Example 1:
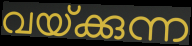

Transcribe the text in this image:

വയ്‌ക്കുന്ന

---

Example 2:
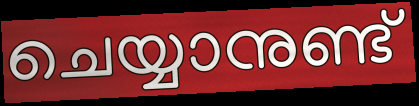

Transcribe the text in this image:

ചെയ്യാനുണ്ട്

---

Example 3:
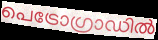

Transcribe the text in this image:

പെട്രോഗ്രാഡിൽ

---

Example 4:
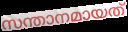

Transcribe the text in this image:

സന്താനമായത്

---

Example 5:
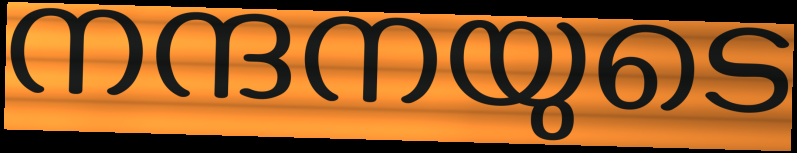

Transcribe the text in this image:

നന്ദനയുടെ